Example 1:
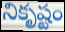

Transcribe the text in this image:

నికృష్టం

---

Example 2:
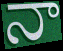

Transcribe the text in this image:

నా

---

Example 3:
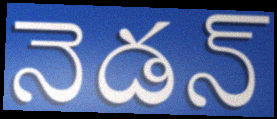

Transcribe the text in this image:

నెడన్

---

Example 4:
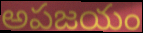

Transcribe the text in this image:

అపజయం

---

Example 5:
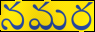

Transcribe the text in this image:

నమర